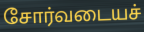
சோர்வடையச்